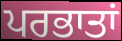
ਪਰਭਾਤਾਂ